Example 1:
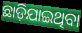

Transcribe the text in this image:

ଛାଡ଼ିଯାଇଥିବା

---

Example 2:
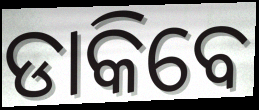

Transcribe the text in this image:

ଡାକିବେ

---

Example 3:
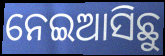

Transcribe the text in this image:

ନେଇଆସିଛୁ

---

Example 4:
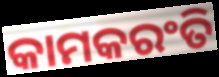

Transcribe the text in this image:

କାମକରଂତି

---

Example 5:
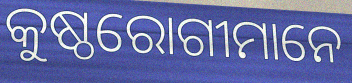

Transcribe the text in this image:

କୁଷ୍ଠରୋଗୀମାନେ